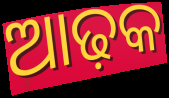
ଆଢ଼କ